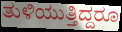
ತುಳಿಯುತ್ತಿದ್ದರೂ